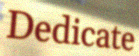
Dedicate